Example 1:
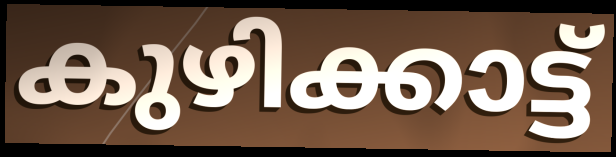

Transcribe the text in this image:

കുഴിക്കാട്ട്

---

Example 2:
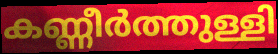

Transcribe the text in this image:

കണ്ണീർത്തുള്ളി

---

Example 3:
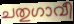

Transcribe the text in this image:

ചതുഗാവീ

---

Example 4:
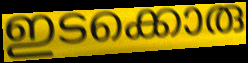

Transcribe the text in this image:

ഇടക്കൊരു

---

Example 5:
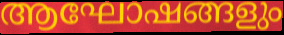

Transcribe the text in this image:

ആഘോഷങ്ങളും